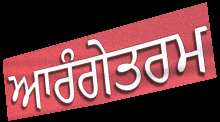
ਆਰੰਗੇਤਰਮ